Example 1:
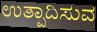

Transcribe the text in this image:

ಉತ್ಪಾದಿಸುವ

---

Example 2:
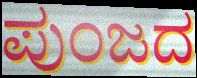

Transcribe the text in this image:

ಪುಂಜದ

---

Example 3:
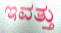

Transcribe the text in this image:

ಇವತ್ತು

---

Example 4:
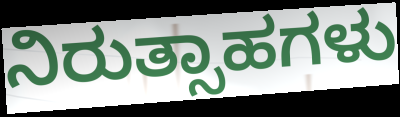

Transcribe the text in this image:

ನಿರುತ್ಸಾಹಗಳು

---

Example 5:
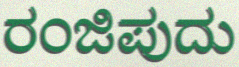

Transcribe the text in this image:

ರಂಜಿಪುದು